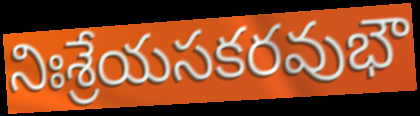
నిఃశ్రేయసకరవుభౌ